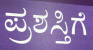
ಪ್ರಶಸ್ತಿಗೆ